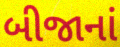
બીજાનાં